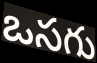
ఒసగు